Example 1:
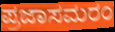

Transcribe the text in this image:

ಪ್ರಜಾಸಮರಂ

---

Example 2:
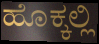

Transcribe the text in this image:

ಹೊಕ್ಕಲ್ಲಿ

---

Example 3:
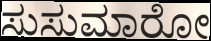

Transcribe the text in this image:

ಸುಸುಮಾರೋ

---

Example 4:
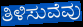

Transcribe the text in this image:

ತಿಳಿಸುವೆವು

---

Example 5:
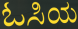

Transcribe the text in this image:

ಓಸಿಯ